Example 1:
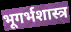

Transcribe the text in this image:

भूगर्भशास्त्र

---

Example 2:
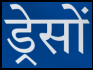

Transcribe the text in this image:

ड्रेसों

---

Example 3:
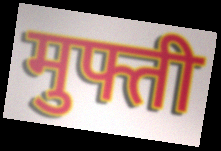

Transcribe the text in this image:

मुफ्ती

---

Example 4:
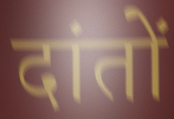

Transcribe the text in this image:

दांतों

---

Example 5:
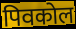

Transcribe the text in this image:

पिवकोल